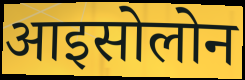
आइसोलोन